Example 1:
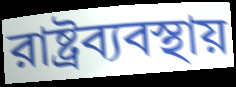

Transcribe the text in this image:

রাষ্ট্রব্যবস্থায়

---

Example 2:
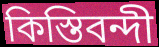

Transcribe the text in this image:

কিস্তিবন্দী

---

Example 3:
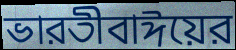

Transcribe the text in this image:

ভারতীবাঈয়ের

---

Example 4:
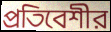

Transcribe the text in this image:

প্রতিবেশীর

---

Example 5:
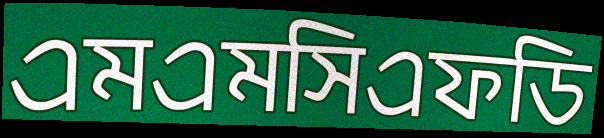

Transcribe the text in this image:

এমএমসিএফডি